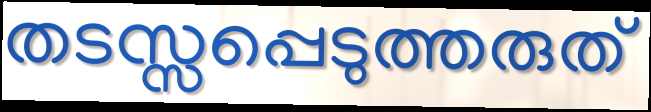
തടസ്സപ്പെടുത്തരുത്